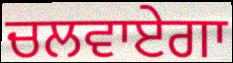
ਚਲਵਾਏਗਾ